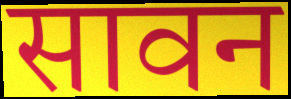
सावन